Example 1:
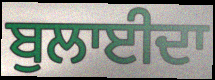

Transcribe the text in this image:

ਬੁਲਾਈਦਾ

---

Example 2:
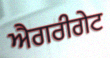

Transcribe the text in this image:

ਐਗਰੀਗੇਟ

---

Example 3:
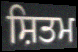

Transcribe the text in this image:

ਸ਼ਿਤਮ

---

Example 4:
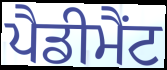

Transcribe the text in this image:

ਪੈਡੀਮੈਂਟ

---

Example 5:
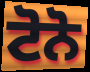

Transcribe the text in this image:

ਟੋਨੋ